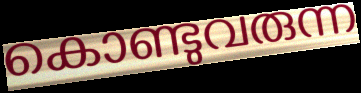
കൊണ്ടുവരുന്ന